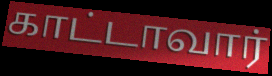
காட்டாவார்